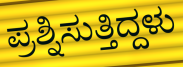
ಪ್ರಶ್ನಿಸುತ್ತಿದ್ದಳು